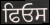
ਫਿਓਸ